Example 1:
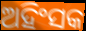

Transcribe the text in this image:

ଅହିଂସକ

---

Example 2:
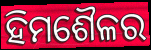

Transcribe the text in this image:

ହିମଶୈଳର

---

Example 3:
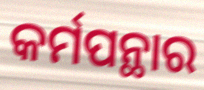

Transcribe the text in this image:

କର୍ମପନ୍ଥାର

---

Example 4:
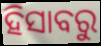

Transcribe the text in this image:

ହିସାବରୁ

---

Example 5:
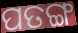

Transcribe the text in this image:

ପତଙ୍ଗ